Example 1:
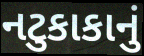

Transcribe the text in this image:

નટુકાકાનું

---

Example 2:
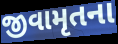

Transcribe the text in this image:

જીવામૃતના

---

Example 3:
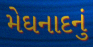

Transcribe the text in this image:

મેઘનાદનું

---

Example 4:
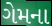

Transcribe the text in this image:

ગેમના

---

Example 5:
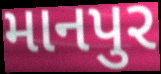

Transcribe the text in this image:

માનપુર